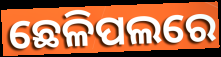
ଛେଳିପଲରେ